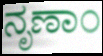
ನೃಣಾಂ